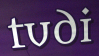
tudi